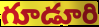
గూడూరి